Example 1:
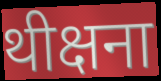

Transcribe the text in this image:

थीक्षना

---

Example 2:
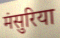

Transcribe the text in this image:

मंसुरिया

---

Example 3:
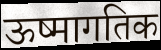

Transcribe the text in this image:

ऊष्मागतिक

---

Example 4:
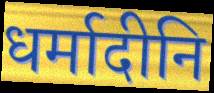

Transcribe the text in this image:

धर्मादीनि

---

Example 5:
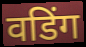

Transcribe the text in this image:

वडिंग